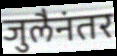
जुलैनंतर